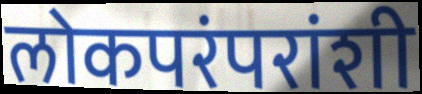
लोकपरंपरांशी